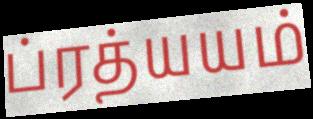
ப்ரத்யயம்